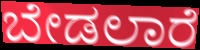
ಬೇಡಲಾರೆ